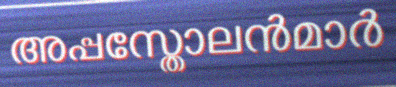
അപ്പസ്തോലൻമാർ